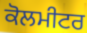
ਕੋਲਮੀਟਰ